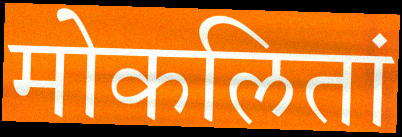
मोकलितां